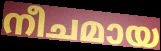
നീചമായ